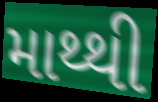
માથ્થી